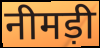
नीमड़ी